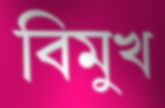
বিমুখ